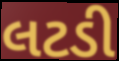
લટડી